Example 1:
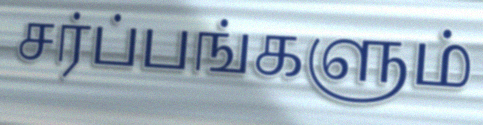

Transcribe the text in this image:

சர்ப்பங்களும்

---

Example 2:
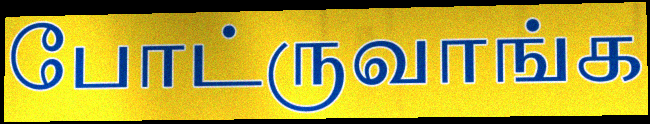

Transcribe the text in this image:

போட்ருவாங்க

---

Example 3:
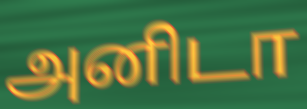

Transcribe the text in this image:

அனிடா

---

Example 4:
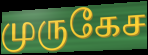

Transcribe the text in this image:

முருகேச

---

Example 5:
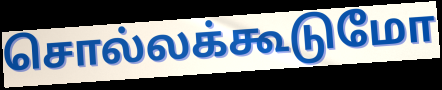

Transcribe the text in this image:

சொல்லக்கூடுமோ